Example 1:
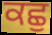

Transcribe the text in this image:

ਕਛੁ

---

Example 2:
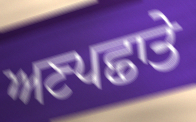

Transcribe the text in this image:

ਅਣਪਛਾਤੇ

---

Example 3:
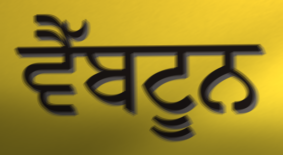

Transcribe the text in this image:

ਵੈੱਬਟੂਨ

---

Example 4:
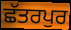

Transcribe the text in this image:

ਛੱਤਰਪੁਰ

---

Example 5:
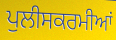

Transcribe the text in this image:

ਪੁਲੀਸਕਰਮੀਆਂ